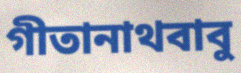
গীতানাথবাবু